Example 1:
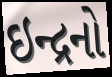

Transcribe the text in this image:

ઇન્દ્રનો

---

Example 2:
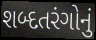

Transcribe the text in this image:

શબ્દતરંગોનું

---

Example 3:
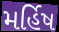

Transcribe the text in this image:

મર્હિષ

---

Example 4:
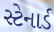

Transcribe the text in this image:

સ્ટેનાર્ડ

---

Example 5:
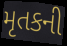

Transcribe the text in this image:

મૃતકની